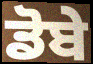
ਡੋਬੇ